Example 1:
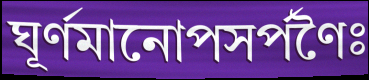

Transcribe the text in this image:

ঘূর্ণমানোপসর্পণৈঃ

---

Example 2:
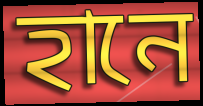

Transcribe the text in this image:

হানে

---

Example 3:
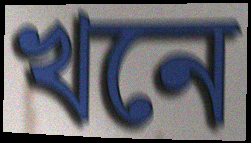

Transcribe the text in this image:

খনে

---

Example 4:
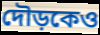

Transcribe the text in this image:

দৌড়কেও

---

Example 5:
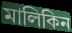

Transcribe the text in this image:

মালিকিন